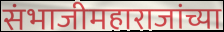
संभाजीमहाराजांच्या